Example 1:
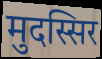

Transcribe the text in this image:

मुदस्सिर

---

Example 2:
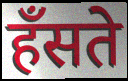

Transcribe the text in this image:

हँसते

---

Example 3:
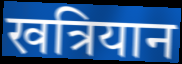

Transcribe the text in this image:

खत्रियान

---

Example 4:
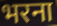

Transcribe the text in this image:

भरना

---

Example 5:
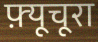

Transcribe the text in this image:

फ़्यूचूरा